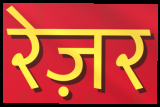
रेज़र